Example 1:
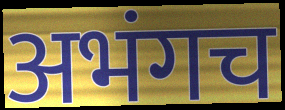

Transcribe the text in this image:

अभंगच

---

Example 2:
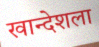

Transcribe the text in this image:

खान्देशला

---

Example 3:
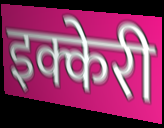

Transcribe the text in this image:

इक्केरी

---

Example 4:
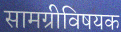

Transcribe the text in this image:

सामग्रीविषयक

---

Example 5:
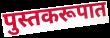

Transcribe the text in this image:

पुस्तकरूपात